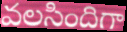
వలసిందిగా